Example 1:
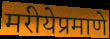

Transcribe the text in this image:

मरीयेप्रमाणे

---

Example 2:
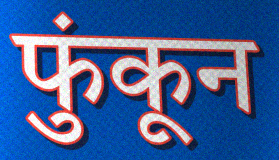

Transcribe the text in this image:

फुंकून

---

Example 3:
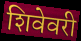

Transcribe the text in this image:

शिवेवरी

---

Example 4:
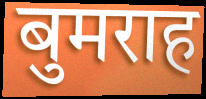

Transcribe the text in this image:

बुमराह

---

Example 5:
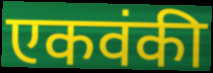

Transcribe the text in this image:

एकवंकी